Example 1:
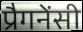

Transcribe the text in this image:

प्रैगनेंसी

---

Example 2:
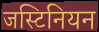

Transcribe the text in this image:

जस्टिनियन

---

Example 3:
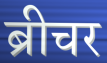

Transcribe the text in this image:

ब्रीचर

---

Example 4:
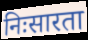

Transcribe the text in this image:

निःसारता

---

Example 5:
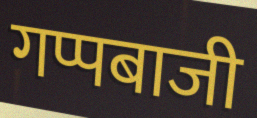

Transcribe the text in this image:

गप्पबाजी